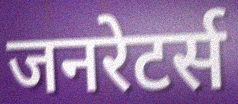
जनरेटर्स